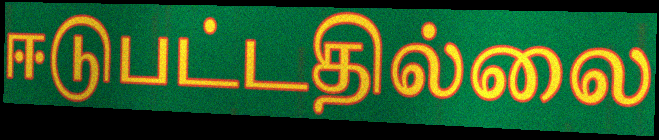
ஈடுபட்டதில்லை